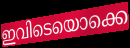
ഇവിടെയൊക്കെ